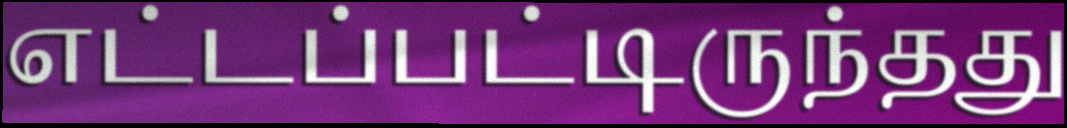
எட்டப்பட்டிருந்தது